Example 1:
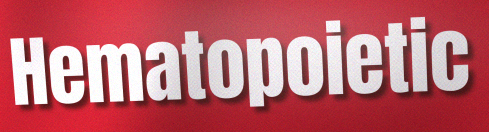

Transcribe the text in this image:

Hematopoietic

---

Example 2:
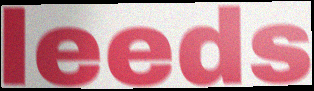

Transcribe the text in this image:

leeds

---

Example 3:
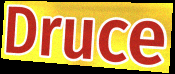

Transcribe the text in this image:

Druce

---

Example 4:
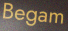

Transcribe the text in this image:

Begam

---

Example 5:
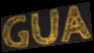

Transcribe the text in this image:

GUA